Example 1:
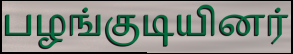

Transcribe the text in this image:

பழங்குடியினர்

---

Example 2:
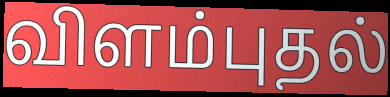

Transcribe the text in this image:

விளம்புதல்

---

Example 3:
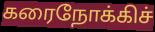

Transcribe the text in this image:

கரைநோக்கிச்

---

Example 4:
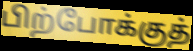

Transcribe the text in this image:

பிற்போக்குத்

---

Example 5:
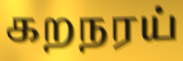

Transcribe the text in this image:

கறநரய்